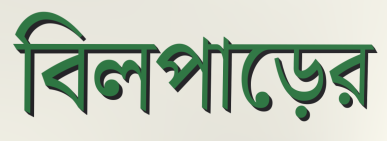
বিলপাড়ের